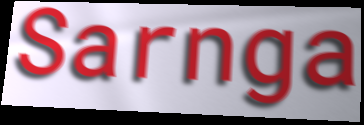
Sarnga